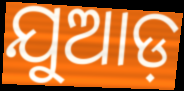
ଯୁଆଡ଼